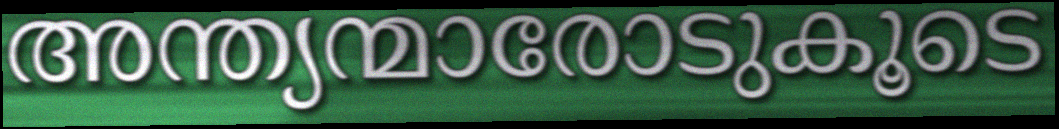
അന്ത്യന്മാരോടുകൂടെ